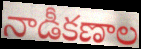
నాడీకణాల